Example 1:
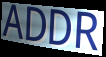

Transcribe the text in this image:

ADDR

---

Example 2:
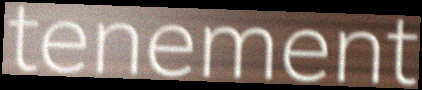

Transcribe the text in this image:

tenement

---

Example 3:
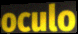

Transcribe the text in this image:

oculo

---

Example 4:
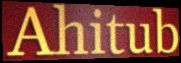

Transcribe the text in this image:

Ahitub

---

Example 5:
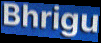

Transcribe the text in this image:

Bhrigu